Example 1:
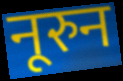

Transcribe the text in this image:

नूरुन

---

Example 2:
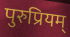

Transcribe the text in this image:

पुरुप्रियम्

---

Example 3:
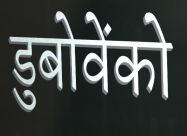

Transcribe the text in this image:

डुबोवेंको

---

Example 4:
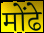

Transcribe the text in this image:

मोंढे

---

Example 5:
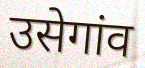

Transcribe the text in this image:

उसेगांव